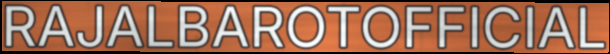
RAJALBAROTOFFICIAL